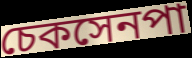
চেকসেনপা